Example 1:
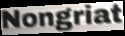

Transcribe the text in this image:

Nongriat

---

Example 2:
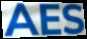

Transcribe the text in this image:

AES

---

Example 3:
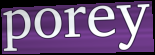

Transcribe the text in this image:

porey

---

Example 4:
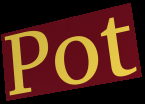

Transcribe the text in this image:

Pot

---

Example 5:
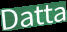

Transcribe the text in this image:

Datta